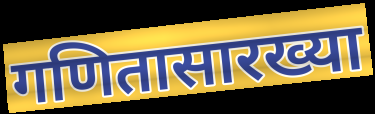
गणितासारख्या